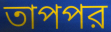
তাপপর